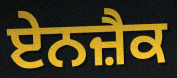
ਏਨਜ਼ੈਕ